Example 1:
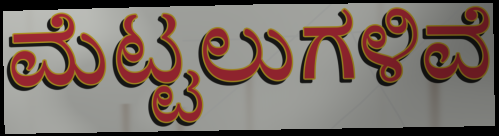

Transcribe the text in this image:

ಮೆಟ್ಟಲುಗಳಿವೆ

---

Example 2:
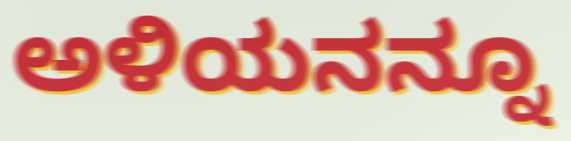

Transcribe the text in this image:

ಅಳಿಯನನ್ನೂ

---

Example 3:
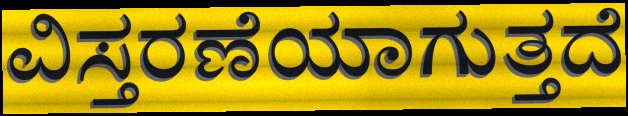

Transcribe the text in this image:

ವಿಸ್ತರಣೆಯಾಗುತ್ತದೆ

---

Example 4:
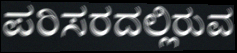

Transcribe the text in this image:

ಪರಿಸರದಲ್ಲಿರುವ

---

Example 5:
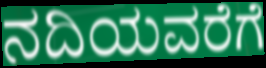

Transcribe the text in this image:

ನದಿಯವರೆಗೆ